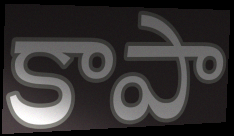
కాపా